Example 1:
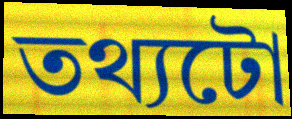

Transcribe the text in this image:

তথ্যটো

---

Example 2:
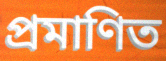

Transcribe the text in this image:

প্ৰমাণিত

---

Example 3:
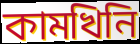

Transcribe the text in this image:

কামখিনি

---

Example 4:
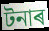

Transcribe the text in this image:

টনাৰ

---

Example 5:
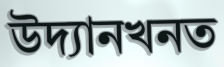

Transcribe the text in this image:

উদ্যানখনত